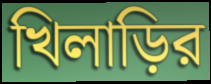
খিলাড়ির